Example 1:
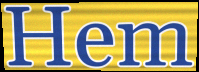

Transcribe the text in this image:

Hem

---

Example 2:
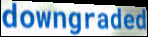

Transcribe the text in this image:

downgraded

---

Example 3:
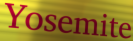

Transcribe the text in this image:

Yosemite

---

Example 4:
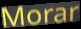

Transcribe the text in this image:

Morar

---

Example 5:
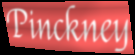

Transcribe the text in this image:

Pinckney